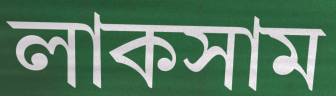
লাকসাম